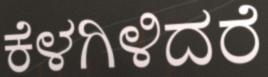
ಕೆಳಗಿಳಿದರೆ